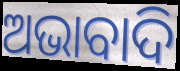
ଅଭାବାଦି